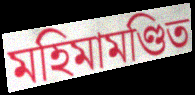
মহিমামণ্ডিত